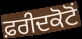
ਫ਼ਰੀਦਕੋਟੋਂ